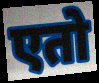
एतो